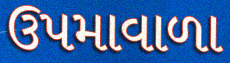
ઉપમાવાળા